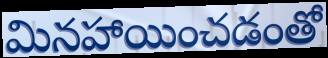
మినహాయించడంతో